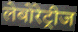
लेबोरेट्रीज